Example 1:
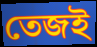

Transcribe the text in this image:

তেজই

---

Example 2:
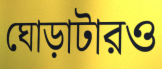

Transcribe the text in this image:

ঘোড়াটারও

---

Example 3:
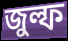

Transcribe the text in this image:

জুল্ফ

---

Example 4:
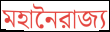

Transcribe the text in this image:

মহানৈরাজ্য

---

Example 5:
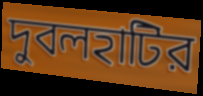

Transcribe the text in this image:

দুবলহাটির